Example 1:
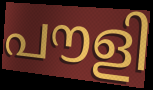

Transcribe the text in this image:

പൗളി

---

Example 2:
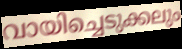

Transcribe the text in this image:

വായിച്ചെടുക്കലും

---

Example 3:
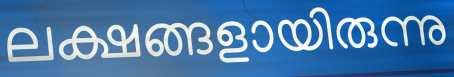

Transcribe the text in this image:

ലക്ഷങ്ങളായിരുന്നു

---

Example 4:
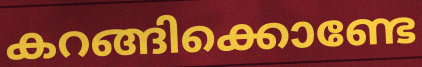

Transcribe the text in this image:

കറങ്ങിക്കൊണ്ടേ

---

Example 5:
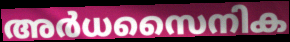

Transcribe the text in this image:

അർധസൈനിക